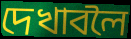
দেখাবলৈ